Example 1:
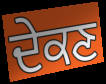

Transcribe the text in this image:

ਦੇਕਣ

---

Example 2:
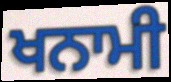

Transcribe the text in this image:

ਖਨਾਮੀ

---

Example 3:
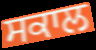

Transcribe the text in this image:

ਸਕਾਲ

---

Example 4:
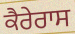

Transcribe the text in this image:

ਕੈਰੇਰਾਸ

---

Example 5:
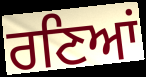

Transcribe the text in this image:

ਰਣਿਆਂ